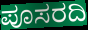
ಪೂಸರದಿ